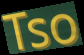
Tso